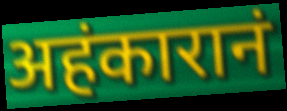
अहंकारानं